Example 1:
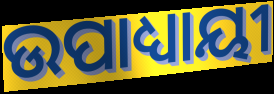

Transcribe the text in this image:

ଉପାଧ୍ୟାୟୀ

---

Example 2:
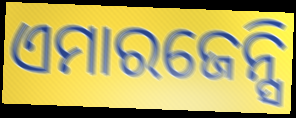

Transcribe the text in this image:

ଏମାରଜେନ୍ସି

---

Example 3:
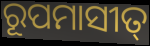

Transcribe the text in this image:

ରୂପମାସୀତ୍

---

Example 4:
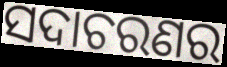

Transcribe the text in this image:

ସଦାଚରଣର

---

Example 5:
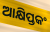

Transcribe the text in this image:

ଆକ୍ଷିପ୍ତକଂ